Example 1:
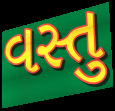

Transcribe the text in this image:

વસ્તુ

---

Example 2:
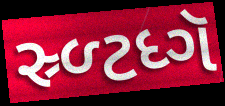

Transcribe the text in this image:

સ્ર્ળ્ટધ્ગૅ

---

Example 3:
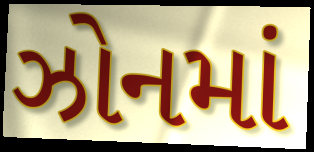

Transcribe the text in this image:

ઝોનમાં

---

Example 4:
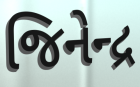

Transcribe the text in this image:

જિનેન્દ્ર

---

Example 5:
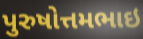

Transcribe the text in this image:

પુરુષોત્તમભાઇ